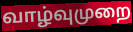
வாழ்வுமுறை